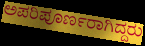
ಅಪರಿಪೂರ್ಣರಾಗಿದ್ದರು